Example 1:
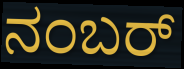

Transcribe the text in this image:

ನಂಬರ್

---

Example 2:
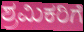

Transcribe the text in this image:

ಶ್ರಮಿಕರಿಗೆ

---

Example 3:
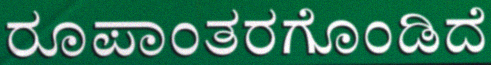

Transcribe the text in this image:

ರೂಪಾಂತರಗೊಂಡಿದೆ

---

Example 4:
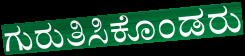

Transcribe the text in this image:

ಗುರುತಿಸಿಕೊಂಡರು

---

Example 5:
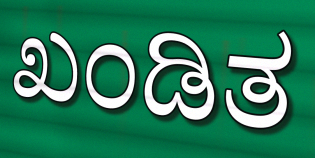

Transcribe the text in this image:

ಖಂಡಿತ